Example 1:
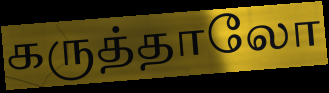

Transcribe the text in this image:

கருத்தாலோ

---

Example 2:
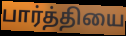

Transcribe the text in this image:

பார்த்தியை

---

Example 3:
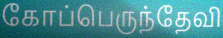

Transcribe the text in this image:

கோப்பெருந்தேவி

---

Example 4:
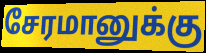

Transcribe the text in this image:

சேரமானுக்கு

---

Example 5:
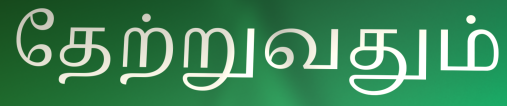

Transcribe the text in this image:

தேற்றுவதும்